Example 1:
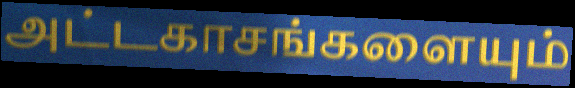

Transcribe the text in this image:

அட்டகாசங்களையும்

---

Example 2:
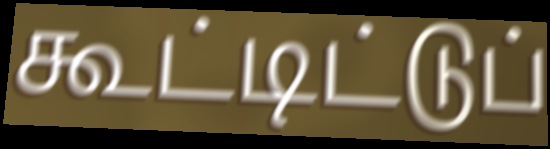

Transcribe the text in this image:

கூட்டிட்டுப்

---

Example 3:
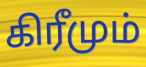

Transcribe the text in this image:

கிரீமும்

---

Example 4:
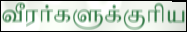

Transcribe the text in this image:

வீரர்களுக்குரிய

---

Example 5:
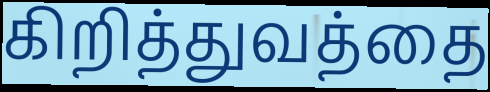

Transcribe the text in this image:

கிறித்துவத்தை